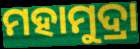
ମହାମୁଦ୍ରା